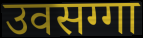
उवसग्गा